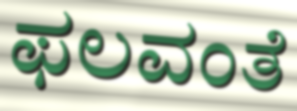
ಫಲವಂತೆ